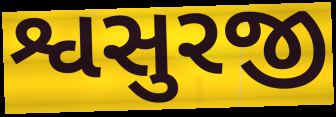
શ્વસુરજી